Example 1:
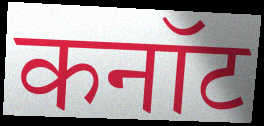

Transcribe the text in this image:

कनॉट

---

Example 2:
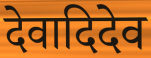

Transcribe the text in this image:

देवादिदेव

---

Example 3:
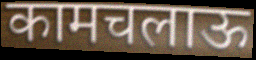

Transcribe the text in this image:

कामचलाऊ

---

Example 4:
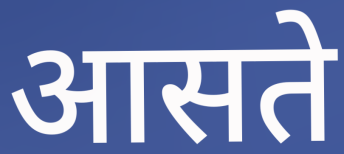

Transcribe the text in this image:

आसते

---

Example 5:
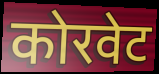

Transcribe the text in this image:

कोरवेट